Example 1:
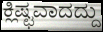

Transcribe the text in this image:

ಕ್ಲಿಷ್ಟವಾದದ್ದು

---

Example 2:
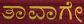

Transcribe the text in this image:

ತಾವಾಗೇ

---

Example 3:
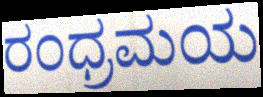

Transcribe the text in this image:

ರಂಧ್ರಮಯ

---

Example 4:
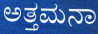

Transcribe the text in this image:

ಅತ್ತಮನಾ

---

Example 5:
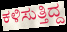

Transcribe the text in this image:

ಕಳಿಸುತ್ತಿದ್ದ